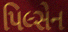
પિલ્સેન